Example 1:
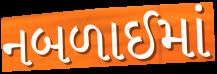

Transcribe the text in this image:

નબળાઈમાં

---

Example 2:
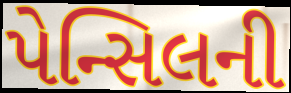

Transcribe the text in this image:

પેન્સિલની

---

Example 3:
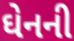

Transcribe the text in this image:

ઘેનની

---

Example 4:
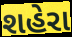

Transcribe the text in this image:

શહેરા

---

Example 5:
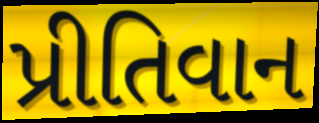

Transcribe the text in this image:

પ્રીતિવાન